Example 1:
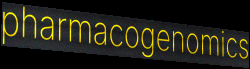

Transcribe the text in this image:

pharmacogenomics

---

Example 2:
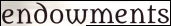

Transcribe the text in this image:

endowments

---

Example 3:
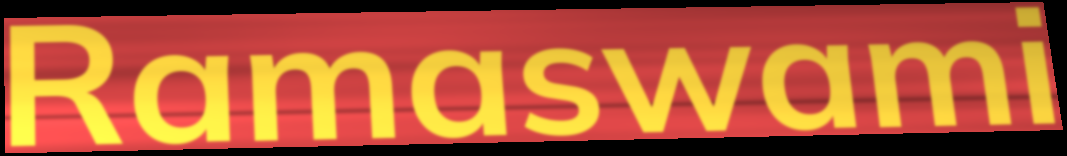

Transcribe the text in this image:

Ramaswami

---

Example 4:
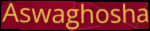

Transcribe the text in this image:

Aswaghosha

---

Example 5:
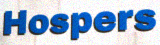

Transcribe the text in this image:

Hospers